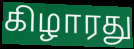
கிழாரது